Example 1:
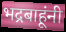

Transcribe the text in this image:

भद्रबाहूंनी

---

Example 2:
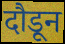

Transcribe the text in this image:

दौडून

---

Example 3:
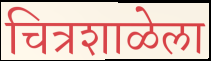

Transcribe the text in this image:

चित्रशाळेला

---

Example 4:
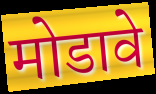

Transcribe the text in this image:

मोडावे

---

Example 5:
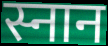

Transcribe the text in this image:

स्नान